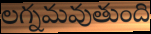
లగ్నమవుతుంది